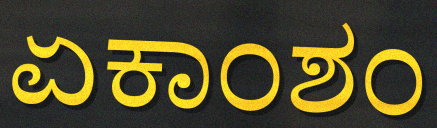
ಏಕಾಂಶಂ